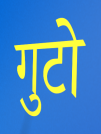
गुटो